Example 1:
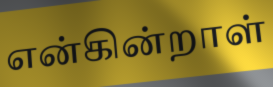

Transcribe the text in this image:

என்கின்றாள்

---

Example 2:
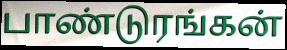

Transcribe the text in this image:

பாண்டுரங்கன்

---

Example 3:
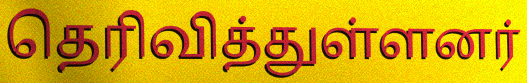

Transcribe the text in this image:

தெரிவித்துள்ளனர்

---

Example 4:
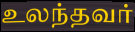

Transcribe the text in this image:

உலந்தவர்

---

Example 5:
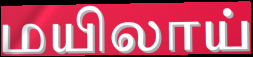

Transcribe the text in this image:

மயிலாய்